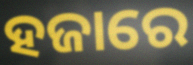
ହଜାରେ